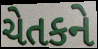
ચેતકને